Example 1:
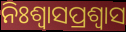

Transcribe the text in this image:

ନିଃଶ୍ୱାସପ୍ରଶ୍ୱାସ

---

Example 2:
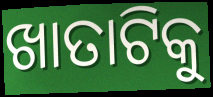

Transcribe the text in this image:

ଖାତାଟିକୁ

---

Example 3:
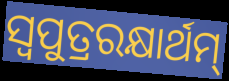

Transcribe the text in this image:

ସ୍ଵପୁତ୍ରରକ୍ଷାର୍ଥମ୍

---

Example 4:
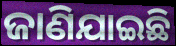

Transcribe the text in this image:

ଜାଣିଯାଇଛି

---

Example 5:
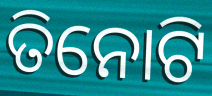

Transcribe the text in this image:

ତିନୋଟି